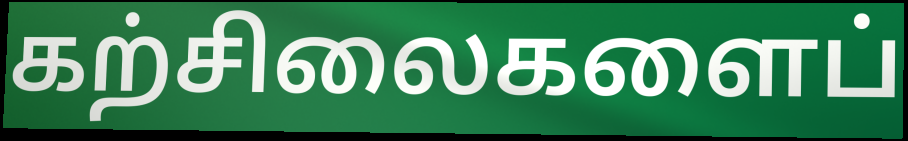
கற்சிலைகளைப்